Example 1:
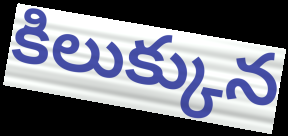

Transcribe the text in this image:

కిలుక్కున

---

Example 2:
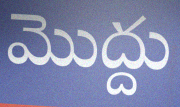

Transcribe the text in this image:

మొద్దు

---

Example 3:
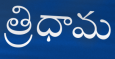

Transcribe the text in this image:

త్రిధామ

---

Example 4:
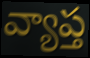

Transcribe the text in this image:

వ్యాప్త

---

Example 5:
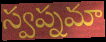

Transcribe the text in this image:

స్వప్నమా